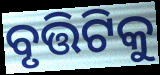
ବୃତ୍ତିଟିକୁ